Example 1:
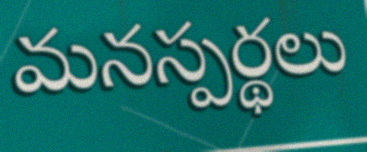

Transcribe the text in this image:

మనస్పర్థలు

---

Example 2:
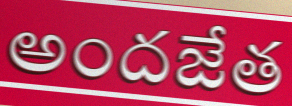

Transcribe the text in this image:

అందజేత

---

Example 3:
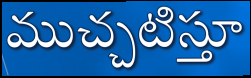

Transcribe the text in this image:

ముచ్చటిస్తూ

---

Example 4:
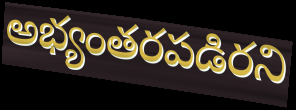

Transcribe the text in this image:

అభ్యంతరపడిరని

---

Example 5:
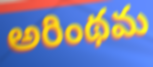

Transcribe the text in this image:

అరింథమ